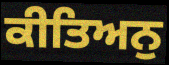
ਕੀਤਿਅਨੁ